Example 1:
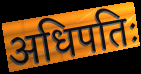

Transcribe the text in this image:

अधिपतिः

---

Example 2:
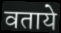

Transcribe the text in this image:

वताये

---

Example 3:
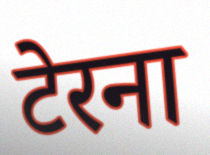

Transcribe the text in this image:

टेरना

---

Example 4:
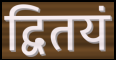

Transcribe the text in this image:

द्वितयं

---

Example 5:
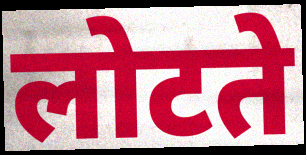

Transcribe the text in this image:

लोटते